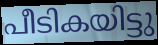
പീടികയിട്ടു